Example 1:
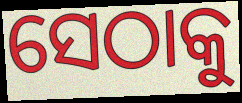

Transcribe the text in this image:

ସେଠାକୁ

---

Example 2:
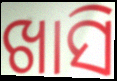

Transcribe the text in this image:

ଖାସି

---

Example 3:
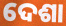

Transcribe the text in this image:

ଦେଶା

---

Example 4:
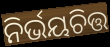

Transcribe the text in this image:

ନିର୍ଭୟଚିତ୍ତ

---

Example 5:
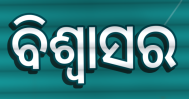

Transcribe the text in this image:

ବିଶ୍ବାସର